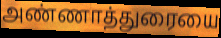
அண்ணாத்துரையை